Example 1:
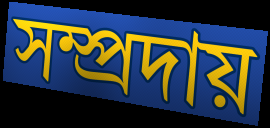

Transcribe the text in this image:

সম্প্ৰদায়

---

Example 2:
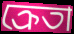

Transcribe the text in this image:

ক্ৰেতা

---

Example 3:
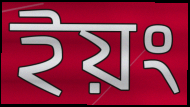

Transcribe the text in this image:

ইয়ং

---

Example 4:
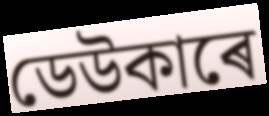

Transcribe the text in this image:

ডেউকাৰে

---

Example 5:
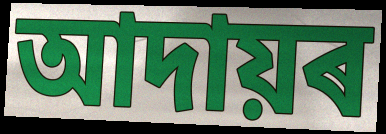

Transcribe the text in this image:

আদায়ৰ